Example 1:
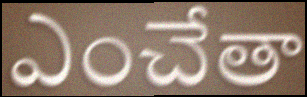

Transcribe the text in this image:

ఎంచేతా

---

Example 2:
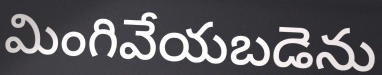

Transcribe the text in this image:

మింగివేయబడెను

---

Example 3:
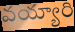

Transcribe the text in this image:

వయ్యారి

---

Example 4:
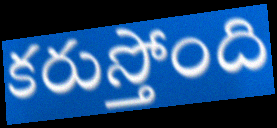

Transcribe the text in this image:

కరుస్తోంది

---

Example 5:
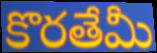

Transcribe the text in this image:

కొరతేమీ